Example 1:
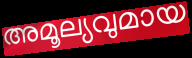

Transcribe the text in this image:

അമൂല്യവുമായ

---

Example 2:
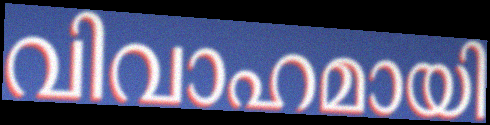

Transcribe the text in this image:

വിവാഹമായി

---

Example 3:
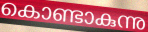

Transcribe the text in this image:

കൊണ്ടാകുന്നു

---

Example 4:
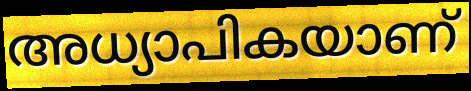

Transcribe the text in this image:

അധ്യാപികയാണ്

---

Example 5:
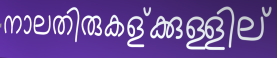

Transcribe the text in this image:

നാലതിരുകള്ക്കുള്ളില്